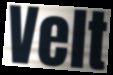
Velt